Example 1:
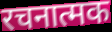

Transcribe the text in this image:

रचनात्मक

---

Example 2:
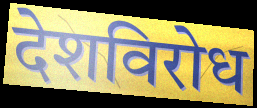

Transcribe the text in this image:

देशविरोध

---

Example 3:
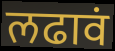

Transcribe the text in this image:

लढावं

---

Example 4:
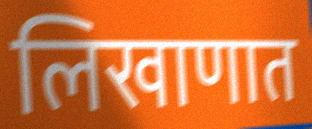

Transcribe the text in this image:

लिखाणात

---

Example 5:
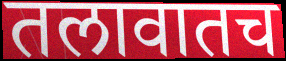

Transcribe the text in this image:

तलावातच